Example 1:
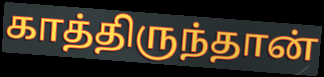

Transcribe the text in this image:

காத்திருந்தான்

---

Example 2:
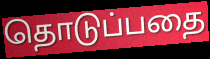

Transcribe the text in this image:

தொடுப்பதை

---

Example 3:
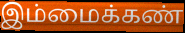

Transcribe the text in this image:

இம்மைக்கண்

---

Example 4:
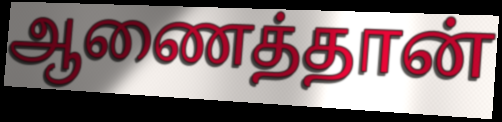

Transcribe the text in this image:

ஆணைத்தான்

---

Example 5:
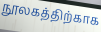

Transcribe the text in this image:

நூலகத்திற்காக